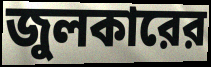
জুলকারের